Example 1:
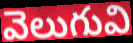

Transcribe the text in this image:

వెలుగువి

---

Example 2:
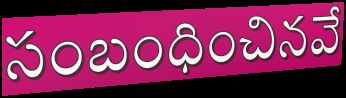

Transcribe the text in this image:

సంబంధించినవే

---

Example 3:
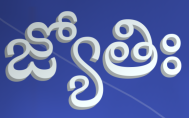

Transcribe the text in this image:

జ్యోతిః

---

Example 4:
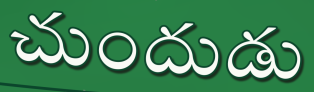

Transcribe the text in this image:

చుందుడు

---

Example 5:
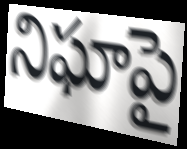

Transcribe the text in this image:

నిఘాపై